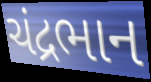
ચંદ્રભાન